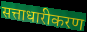
सत्ताधारीकरण